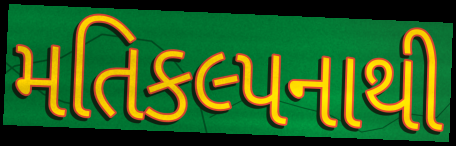
મતિકલ્પનાથી